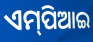
ଏମ୍‌ପିଆଇ